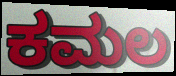
ಕಮಲ